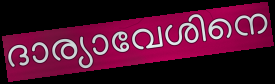
ദാര്യാവേശിനെ